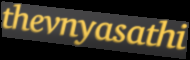
thevnyasathi